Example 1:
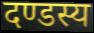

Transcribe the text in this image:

दण्डस्य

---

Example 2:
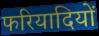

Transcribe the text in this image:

फरियादियों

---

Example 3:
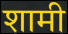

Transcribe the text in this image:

शामी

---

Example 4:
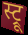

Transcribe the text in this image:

स्ट्रू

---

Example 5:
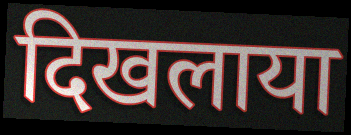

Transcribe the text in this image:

दिखलाया